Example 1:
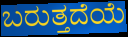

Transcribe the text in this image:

ಬರುತ್ತದೆಯೆ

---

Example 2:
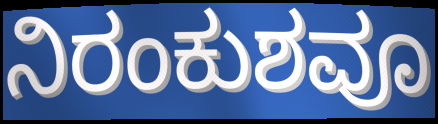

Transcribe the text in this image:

ನಿರಂಕುಶವೂ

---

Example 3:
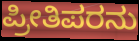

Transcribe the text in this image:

ಪ್ರೀತಿಪರನು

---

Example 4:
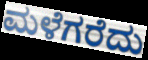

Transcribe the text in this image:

ಮಳೆಗರೆದು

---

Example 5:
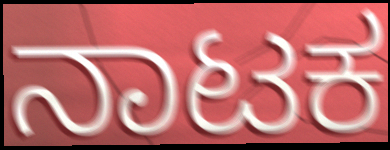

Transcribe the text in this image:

ನಾಟಕ